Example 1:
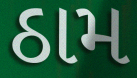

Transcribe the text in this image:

ઠામ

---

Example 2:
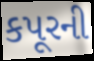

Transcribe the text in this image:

કપૂરની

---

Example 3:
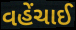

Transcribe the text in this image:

વહેંચાઈ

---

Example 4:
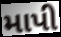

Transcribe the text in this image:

માપી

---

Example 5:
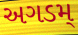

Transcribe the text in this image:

અગડમ્